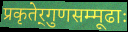
प्रकृतेर्गुणसम्मूढाः